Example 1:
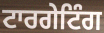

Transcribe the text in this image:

ਟਾਰਗੇਟਿੰਗ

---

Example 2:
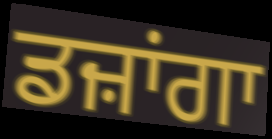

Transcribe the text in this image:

ਡਜ਼ਾਂਗਾ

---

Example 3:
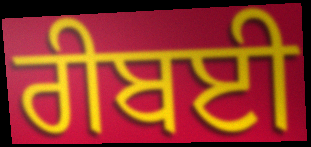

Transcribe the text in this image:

ਰੀਬਈ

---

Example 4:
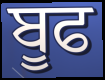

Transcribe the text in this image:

ਬੂਫ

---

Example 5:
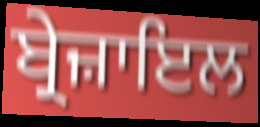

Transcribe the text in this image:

ਬ੍ਰੇਜ਼ਾਇਲ